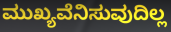
ಮುಖ್ಯವೆನಿಸುವುದಿಲ್ಲ